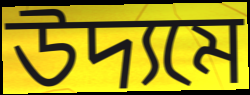
উদ্যমে